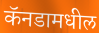
कॅनडामधील